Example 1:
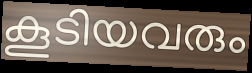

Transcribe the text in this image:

കൂടിയവരും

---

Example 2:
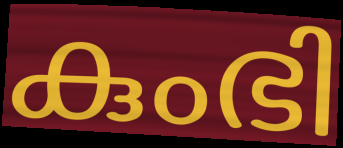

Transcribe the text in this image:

കുംഭി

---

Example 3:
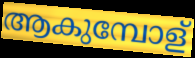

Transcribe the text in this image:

ആകുമ്പോള്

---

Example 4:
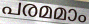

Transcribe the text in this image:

പരമമാം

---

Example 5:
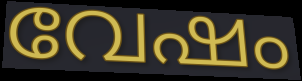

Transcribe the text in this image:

വേഷം